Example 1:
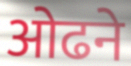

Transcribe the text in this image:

ओढने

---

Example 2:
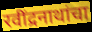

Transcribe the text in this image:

रवींद्रनाथांचा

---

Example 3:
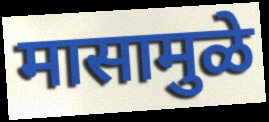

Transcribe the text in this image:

मासामुळे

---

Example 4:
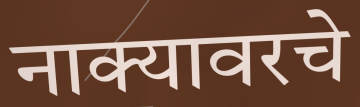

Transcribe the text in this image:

नाक्यावरचे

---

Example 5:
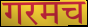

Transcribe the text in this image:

गरमच